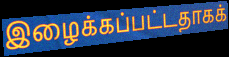
இழைக்கப்பட்டதாகக்